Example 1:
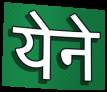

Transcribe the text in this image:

येने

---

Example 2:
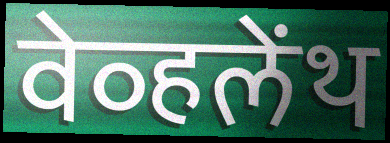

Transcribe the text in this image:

वेव्हलेंथ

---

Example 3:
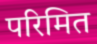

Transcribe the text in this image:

परिमित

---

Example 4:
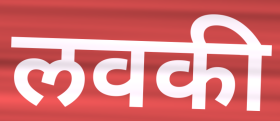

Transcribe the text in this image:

लवकी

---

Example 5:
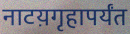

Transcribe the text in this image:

नाटय़गृहापर्यंत